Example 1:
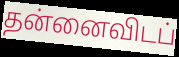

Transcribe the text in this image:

தன்னைவிடப்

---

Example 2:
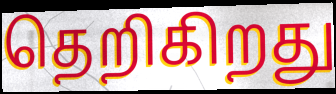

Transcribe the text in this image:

தெறிகிறது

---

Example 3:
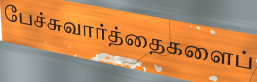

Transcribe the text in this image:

பேச்சுவார்த்தைகளைப்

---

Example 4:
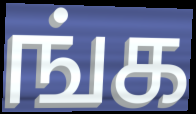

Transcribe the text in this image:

ங்க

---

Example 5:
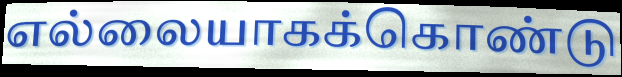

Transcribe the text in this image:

எல்லையாகக்கொண்டு